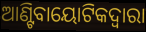
ଆଣ୍ଟିବାୟୋଟିକଦ୍ୱାରା